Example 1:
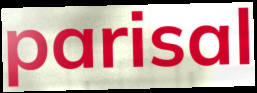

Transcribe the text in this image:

parisal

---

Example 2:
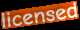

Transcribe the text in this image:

licensed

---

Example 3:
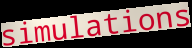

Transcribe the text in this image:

simulations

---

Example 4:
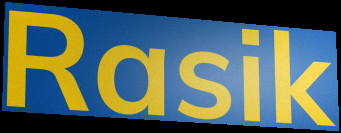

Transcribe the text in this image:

Rasik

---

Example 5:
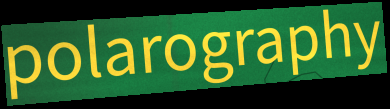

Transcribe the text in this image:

polarography